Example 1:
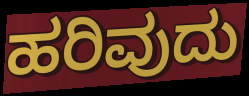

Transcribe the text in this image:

ಹರಿವುದು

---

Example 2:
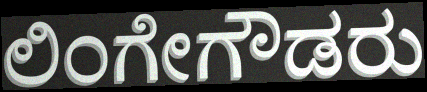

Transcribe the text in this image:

ಲಿಂಗೇಗೌಡರು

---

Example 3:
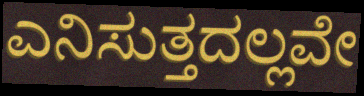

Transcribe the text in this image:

ಎನಿಸುತ್ತದಲ್ಲವೇ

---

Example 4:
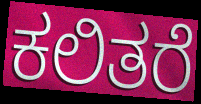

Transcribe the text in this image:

ಕಲಿತರೆ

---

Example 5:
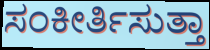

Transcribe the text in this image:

ಸಂಕೀರ್ತಿಸುತ್ತಾ